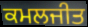
ਕਮਲਜੀਤ